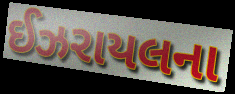
ઈઝરાયલના